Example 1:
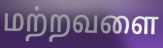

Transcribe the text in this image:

மற்றவளை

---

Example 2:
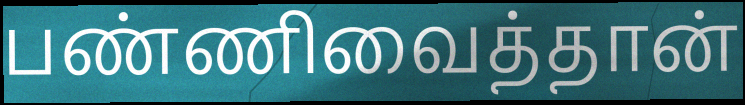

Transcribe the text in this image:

பண்ணிவைத்தான்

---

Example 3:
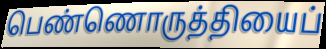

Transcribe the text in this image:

பெண்ணொருத்தியைப்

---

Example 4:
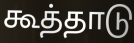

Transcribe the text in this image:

கூத்தாடு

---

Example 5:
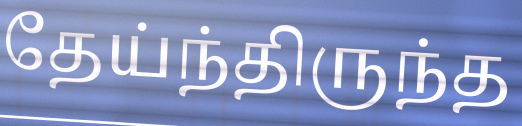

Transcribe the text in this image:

தேய்ந்திருந்த